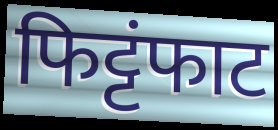
फिट्टंफाट